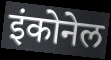
इंकोनेल